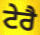
ਟੇਰੈ